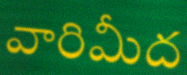
వారిమీద